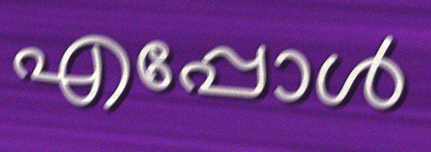
എപ്പോൾ